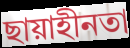
ছায়াহীনতা